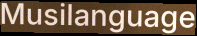
Musilanguage